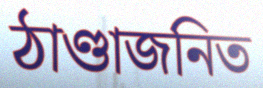
ঠাণ্ডাজনিত